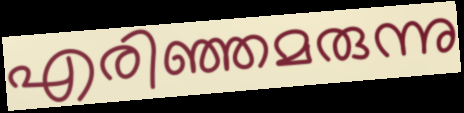
എരിഞ്ഞമരുന്നു